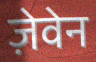
ज़ेवेन